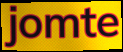
jomte